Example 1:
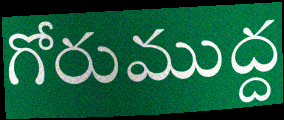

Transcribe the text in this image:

గోరుముద్ద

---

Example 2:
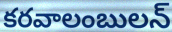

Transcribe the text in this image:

కరవాలంబులన్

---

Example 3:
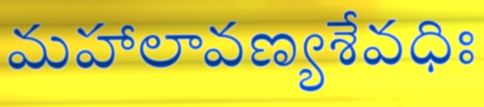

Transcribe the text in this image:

మహాలావణ్యశేవధిః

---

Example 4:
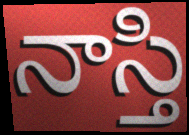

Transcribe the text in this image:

నాస్తి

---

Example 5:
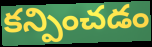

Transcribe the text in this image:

కన్పించడం